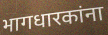
भागधारकांना